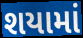
શયામાં